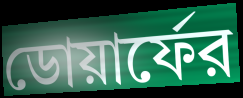
ডোয়ার্ফের